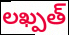
లఖ్పత్